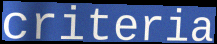
criteria